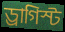
ড্রাগিস্ট